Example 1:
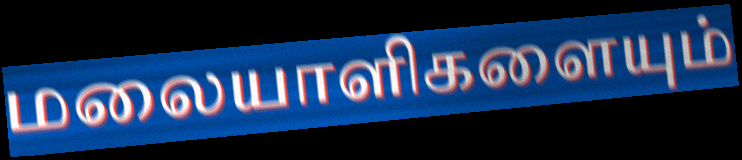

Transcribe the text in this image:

மலையாளிகளையும்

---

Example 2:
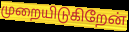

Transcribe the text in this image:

முறையிடுகிறேன்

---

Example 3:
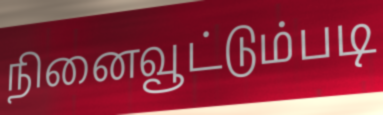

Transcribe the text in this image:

நினைவூட்டும்படி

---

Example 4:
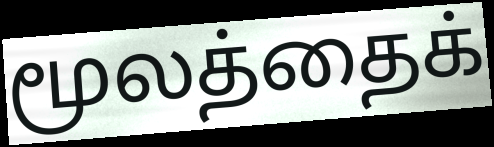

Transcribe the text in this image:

மூலத்தைக்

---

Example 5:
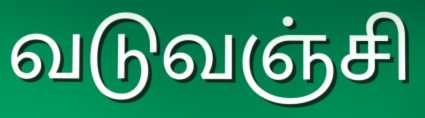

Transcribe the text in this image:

வடுவஞ்சி